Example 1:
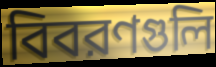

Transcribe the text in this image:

বিবরণগুলি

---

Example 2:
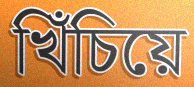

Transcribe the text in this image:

খিঁচিয়ে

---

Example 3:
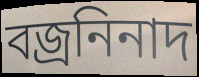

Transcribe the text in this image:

বজ্রনিনাদ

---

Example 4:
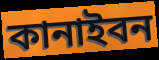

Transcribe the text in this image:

কানাইবন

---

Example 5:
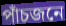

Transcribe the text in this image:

পাঁচজনে